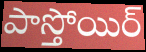
పాస్తోయిర్